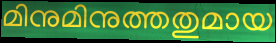
മിനുമിനുത്തതുമായ